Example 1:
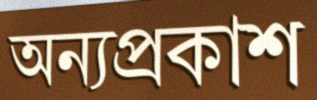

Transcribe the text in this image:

অন্যপ্রকাশ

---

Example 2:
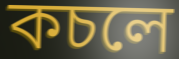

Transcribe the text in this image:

কচলে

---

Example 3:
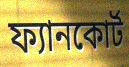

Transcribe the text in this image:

ফ্যানকোর্ট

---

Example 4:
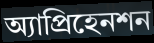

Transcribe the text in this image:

অ্যাপ্রিহেনশন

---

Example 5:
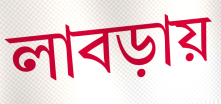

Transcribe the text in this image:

লাবড়ায়